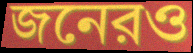
জনেরও